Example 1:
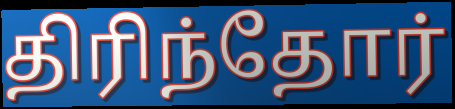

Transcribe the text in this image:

திரிந்தோர்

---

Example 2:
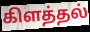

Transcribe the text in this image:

கிளத்தல்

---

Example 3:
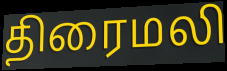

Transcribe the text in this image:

திரைமலி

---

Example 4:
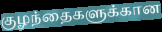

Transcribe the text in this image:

குழந்தைகளுக்கான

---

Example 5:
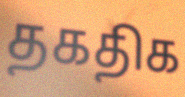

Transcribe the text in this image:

தகதிக